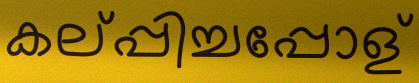
കല്പ്പിച്ചപ്പോള്